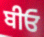
ਬੀਓ